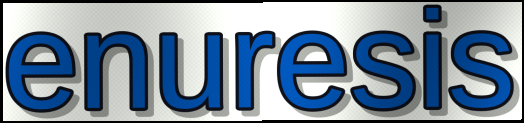
enuresis